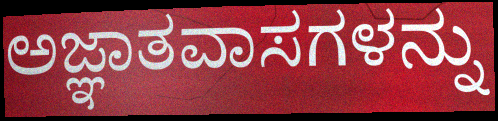
ಅಜ್ಞಾತವಾಸಗಳನ್ನು